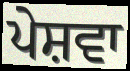
ਪੇਸ਼ਵਾ